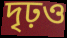
দৃঢ়ও